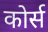
कोर्स